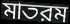
মাতরম